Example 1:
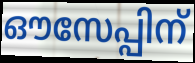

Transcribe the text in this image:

ഔസേപ്പിന്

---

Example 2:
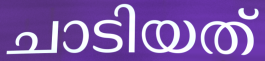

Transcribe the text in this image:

ചാടിയത്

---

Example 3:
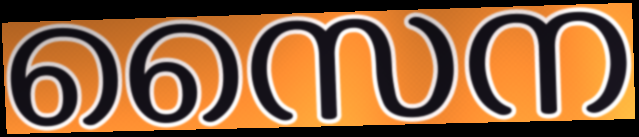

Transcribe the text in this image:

സൈന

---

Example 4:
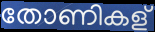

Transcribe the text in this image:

തോണികള്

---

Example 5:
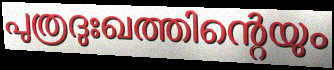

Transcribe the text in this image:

പുത്രദുഃഖത്തിന്റെയും